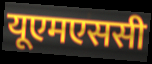
यूएमएससी